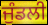
ਜੁੰਡਲੀ